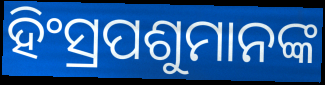
ହିଂସ୍ରପଶୁମାନଙ୍କ